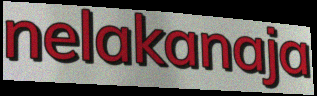
nelakanaja